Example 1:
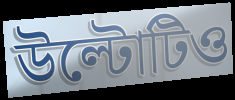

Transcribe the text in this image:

উল্টোটিও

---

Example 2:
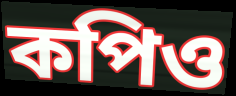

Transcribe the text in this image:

কপিও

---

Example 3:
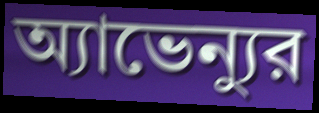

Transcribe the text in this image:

অ্যাভেন্যুর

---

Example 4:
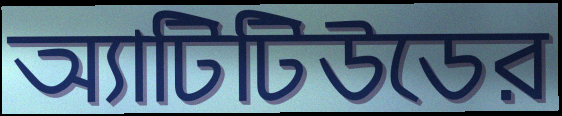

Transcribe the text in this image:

অ্যাটিটিউডের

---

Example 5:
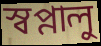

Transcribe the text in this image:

স্বপ্নালু